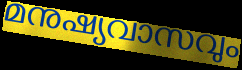
മനുഷ്യവാസവും